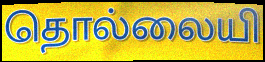
தொல்லையி